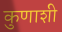
कुणाशी